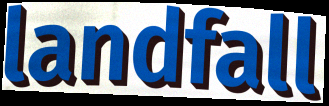
landfall